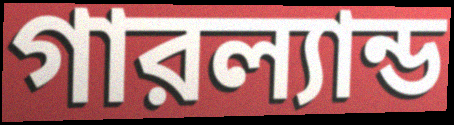
গারল্যান্ড